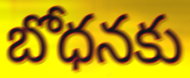
బోధనకు